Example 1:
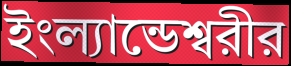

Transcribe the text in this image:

ইংল্যান্ডেশ্বরীর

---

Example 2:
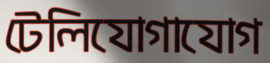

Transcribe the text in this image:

টেলিযোগাযোগ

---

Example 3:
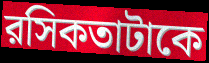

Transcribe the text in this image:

রসিকতাটাকে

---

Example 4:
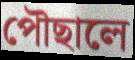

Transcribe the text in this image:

পৌছালে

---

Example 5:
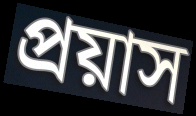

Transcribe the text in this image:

প্রয়াস